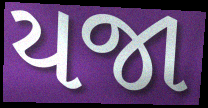
યજા